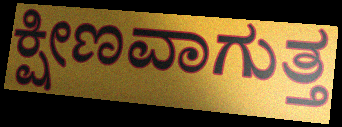
ಕ್ಷೀಣವಾಗುತ್ತ